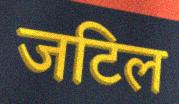
जटिल